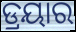
ଡ୍ରୟାର